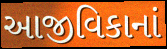
આજીવિકાનાં